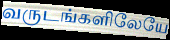
வருடங்களிலேயே